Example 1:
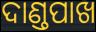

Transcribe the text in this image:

ଦାଣ୍ଡପାଖ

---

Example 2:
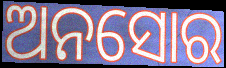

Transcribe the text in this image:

ଅନସୋର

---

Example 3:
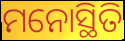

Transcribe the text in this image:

ମନୋସ୍ଥିତି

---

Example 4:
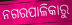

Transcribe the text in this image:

ନଗରପାଳିକାରୁ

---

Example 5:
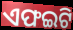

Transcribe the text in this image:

ଏଫଇଟି